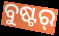
ବୁଷ୍ଟର୍